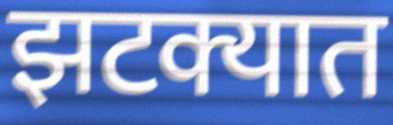
झटक्‍यात